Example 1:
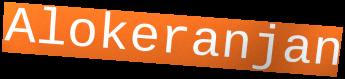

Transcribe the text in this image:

Alokeranjan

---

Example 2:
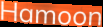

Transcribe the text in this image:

Hamoon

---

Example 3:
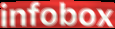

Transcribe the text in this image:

infobox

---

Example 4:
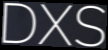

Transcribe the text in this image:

DXS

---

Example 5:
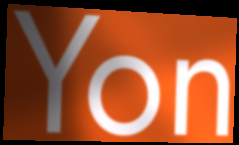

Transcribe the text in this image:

Yon